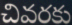
చివరకు